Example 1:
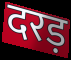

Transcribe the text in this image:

दरड़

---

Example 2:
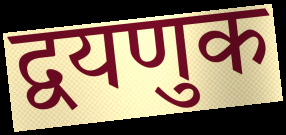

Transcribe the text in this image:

द्वयणुक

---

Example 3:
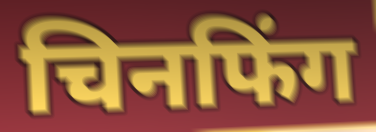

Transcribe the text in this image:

चिनफिंग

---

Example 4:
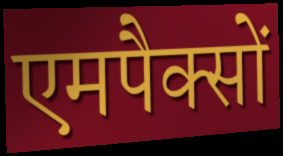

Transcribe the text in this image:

एमपैक्सों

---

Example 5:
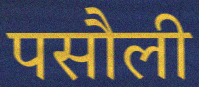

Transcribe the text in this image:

पसौली